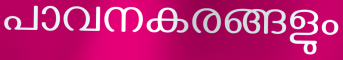
പാവനകരങ്ങളും